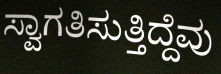
ಸ್ವಾಗತಿಸುತ್ತಿದ್ದೆವು